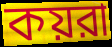
কয়রা